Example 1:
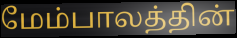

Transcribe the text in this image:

மேம்பாலத்தின்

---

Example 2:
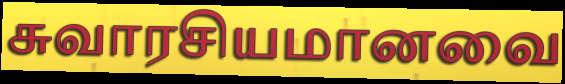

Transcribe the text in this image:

சுவாரசியமானவை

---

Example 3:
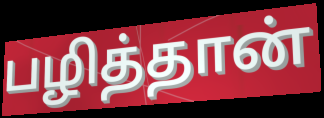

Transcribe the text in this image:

பழித்தான்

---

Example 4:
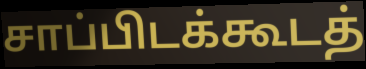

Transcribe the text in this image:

சாப்பிடக்கூடத்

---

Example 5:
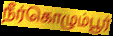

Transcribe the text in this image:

நீர்கொழும்பூர்